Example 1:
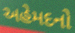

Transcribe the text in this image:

અહેમદનો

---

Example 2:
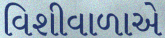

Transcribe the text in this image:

વિશીવાળાએ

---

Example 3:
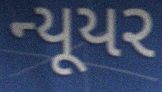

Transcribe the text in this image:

ન્યૂયર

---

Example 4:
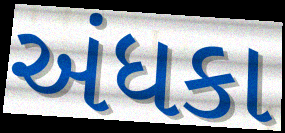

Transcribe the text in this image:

અંધકા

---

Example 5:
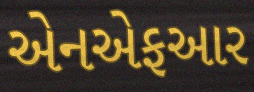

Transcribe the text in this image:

એનએફઆર